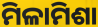
ମିଳାମିଶା